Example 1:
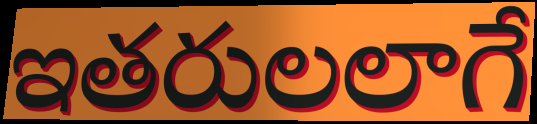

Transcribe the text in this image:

ఇతరులలాగే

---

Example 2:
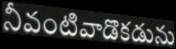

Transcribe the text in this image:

నీవంటివాడొకడును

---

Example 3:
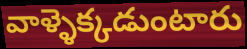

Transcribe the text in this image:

వాళ్ళెక్కడుంటారు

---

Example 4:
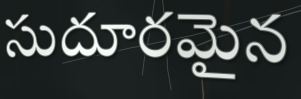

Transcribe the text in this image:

సుదూరమైన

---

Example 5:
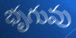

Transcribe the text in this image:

భృగువు